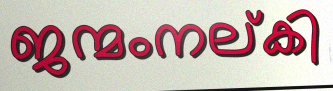
ജന്മംനല്കി